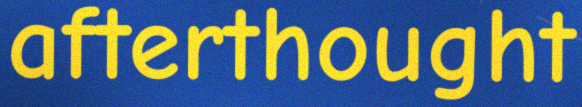
afterthought